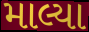
માલ્યા